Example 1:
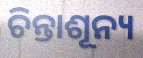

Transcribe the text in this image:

ଚିନ୍ତାଶୂନ୍ୟ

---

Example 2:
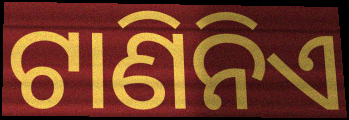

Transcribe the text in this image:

ଟାଣିନିଏ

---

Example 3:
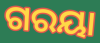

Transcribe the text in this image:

ଗରୟା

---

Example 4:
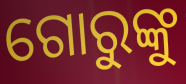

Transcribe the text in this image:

ଗୋରୁଙ୍କୁ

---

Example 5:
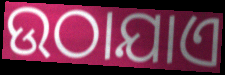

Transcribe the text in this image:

ଉଠାଯାଏ